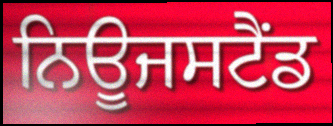
ਨਿਊਜਸਟੈਂਡ